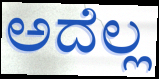
ಅದೆಲ್ಲ